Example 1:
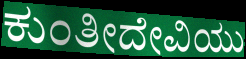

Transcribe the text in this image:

ಕುಂತೀದೇವಿಯು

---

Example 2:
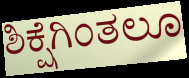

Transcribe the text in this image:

ಶಿಕ್ಷೆಗಿಂತಲೂ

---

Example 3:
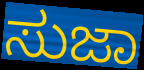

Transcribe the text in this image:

ಸುಜಾ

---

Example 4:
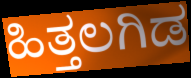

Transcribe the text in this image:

ಹಿತ್ತಲಗಿಡ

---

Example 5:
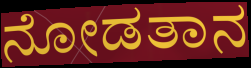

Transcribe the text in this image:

ನೋಡತಾನ